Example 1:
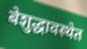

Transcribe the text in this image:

बेशुद्धावस्थेत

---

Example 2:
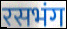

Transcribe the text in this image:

रसभंग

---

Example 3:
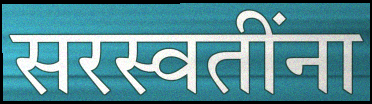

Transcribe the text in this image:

सरस्वतींना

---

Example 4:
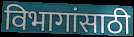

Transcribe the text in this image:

विभागांसाठी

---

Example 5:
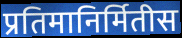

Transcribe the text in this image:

प्रतिमानिर्मितीस